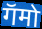
गॅमो